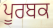
ਪੂਰਬਕ